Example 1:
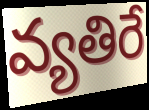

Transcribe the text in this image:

వ్యతిరే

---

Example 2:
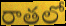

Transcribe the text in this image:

రాతలో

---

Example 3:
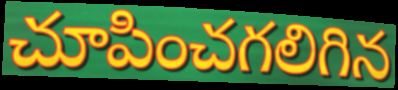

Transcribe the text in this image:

చూపించగలిగిన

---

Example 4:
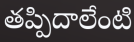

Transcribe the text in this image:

తప్పిదాలేంటి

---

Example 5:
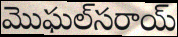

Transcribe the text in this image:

మొఘల్‌సరాయ్